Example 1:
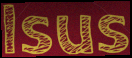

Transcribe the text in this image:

Isus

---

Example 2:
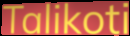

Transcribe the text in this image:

Talikoti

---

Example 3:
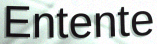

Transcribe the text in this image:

Entente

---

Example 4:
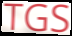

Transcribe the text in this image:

TGS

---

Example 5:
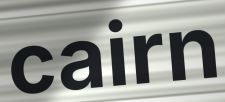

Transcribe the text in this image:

cairn